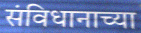
संविधानाच्या